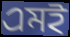
এমই